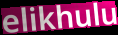
elikhulu